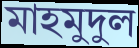
মাহমুদুল